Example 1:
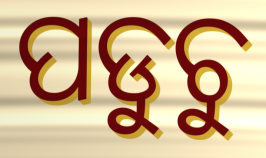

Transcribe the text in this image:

ପଡୁଚୁ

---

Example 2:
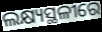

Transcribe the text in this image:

ଲକ୍ଷ୍ୟସ୍ଥଳୀରେ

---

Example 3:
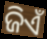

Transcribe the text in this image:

ଜିଏଁ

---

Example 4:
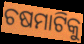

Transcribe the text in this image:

ଚଷମାଟିକୁ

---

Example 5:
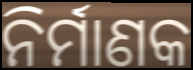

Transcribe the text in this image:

ନିର୍ମାଣକ